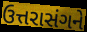
ઉત્તરાસંગને